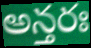
అన్తరః